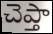
చెప్తా